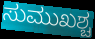
ಸುಮುಖಶ್ಚ